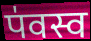
प॑वस्व